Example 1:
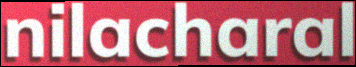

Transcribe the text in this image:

nilacharal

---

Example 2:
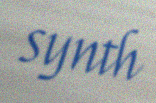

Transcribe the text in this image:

synth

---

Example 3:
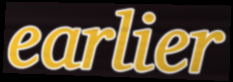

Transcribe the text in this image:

earlier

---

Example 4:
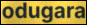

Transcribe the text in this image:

odugara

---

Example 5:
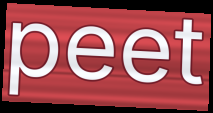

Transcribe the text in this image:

peet